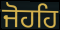
ਜੋਹਹਿ